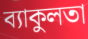
ব্যাকুলতা